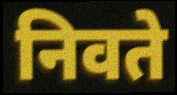
निवते